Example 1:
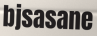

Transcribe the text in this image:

bjsasane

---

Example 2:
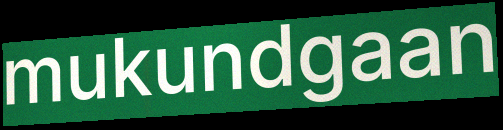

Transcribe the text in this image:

mukundgaan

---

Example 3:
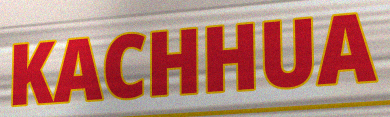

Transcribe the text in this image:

KACHHUA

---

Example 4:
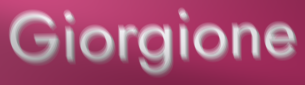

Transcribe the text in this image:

Giorgione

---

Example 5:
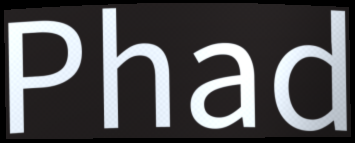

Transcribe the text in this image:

Phad